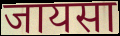
जायसा